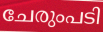
ചേരുംപടി